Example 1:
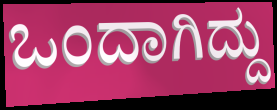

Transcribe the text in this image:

ಒಂದಾಗಿದ್ದು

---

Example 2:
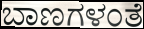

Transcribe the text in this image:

ಬಾಣಗಳಂತೆ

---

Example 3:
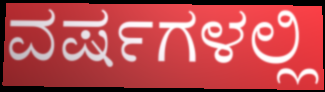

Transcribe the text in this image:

ವರ್ಷಗಳಲ್ಲಿ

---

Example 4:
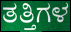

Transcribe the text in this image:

ತತ್ತಿಗಳ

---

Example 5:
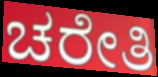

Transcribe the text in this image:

ಚರೇತಿ